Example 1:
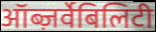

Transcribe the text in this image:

ऑब्ज़र्वेबिलिटी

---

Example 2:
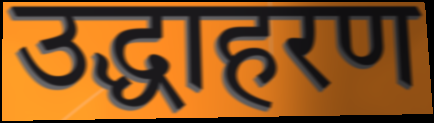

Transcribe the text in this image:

उद्धाहरण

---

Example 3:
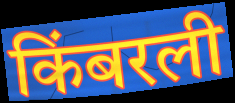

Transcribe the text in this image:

किंबरली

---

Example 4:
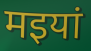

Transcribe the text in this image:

मइयां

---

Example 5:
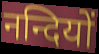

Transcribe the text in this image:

नन्दियों